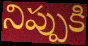
నిప్పుకి